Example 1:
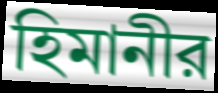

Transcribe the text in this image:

হিমানীর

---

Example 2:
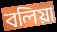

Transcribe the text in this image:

বলিয়া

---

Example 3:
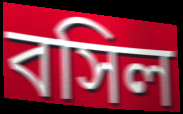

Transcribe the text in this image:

বসিল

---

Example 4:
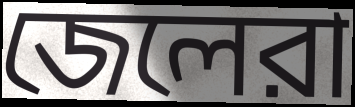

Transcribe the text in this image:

জেলেরা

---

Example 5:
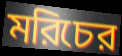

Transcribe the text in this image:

মরিচের